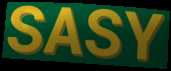
SASY